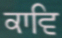
ਕਾਵਿ